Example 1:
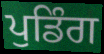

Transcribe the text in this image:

ਪੁਡਿੰਗ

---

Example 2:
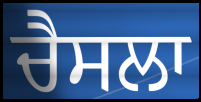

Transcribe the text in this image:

ਚੈਸਲਾ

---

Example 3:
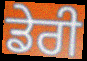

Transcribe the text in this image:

ਡੇਰੀ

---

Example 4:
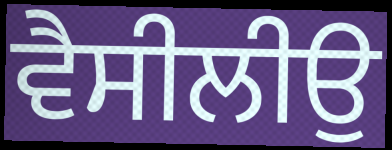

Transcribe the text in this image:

ਵੈਸੀਲੀਉ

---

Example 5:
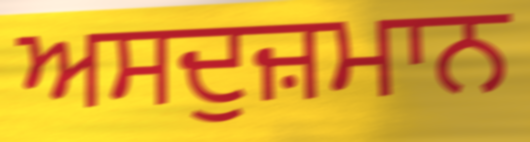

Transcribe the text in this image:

ਅਸਦੁਜ਼ਮਾਨ